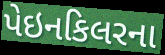
પેઇનકિલરના